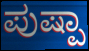
ಪುಷ್ಪಾ